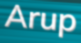
Arup